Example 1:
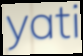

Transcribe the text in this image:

yati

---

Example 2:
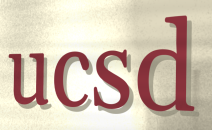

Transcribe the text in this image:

ucsd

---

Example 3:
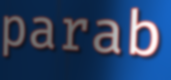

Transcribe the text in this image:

parab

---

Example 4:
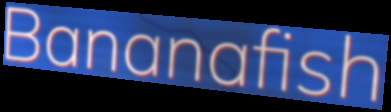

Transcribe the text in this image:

Bananafish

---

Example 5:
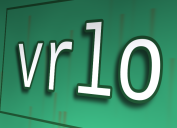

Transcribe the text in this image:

vrlo